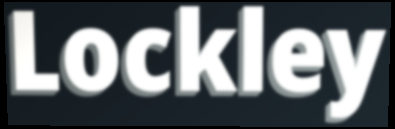
Lockley